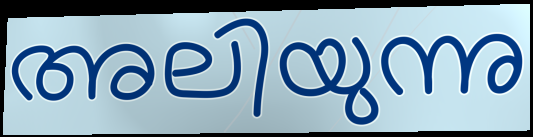
അലിയുന്നു